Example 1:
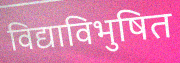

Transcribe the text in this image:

विद्याविभुषित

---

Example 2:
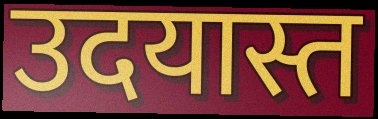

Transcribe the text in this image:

उदयास्त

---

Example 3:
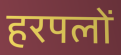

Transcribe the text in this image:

हरपलों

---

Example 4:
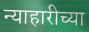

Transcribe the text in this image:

न्याहारीच्या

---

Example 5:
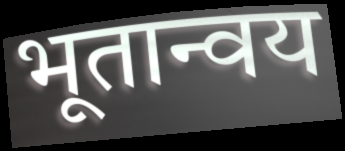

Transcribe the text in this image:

भूतान्वय